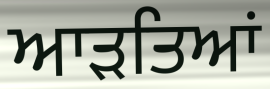
ਆੜਤਿਆਂ